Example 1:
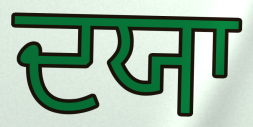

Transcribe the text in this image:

ਦਯਾ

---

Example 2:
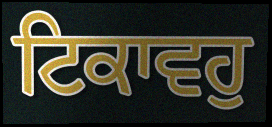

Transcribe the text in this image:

ਟਿਕਾਵਹੁ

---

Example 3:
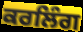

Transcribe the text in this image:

ਕਰਲਿੰਗ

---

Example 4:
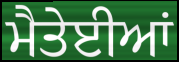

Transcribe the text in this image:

ਮੈਤੇਈਆਂ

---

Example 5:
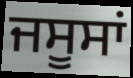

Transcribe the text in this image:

ਜਸੂਸਾਂ